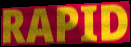
RAPID